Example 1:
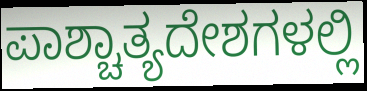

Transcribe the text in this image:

ಪಾಶ್ಚಾತ್ಯದೇಶಗಳಲ್ಲಿ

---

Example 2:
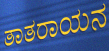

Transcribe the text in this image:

ತಾತರಾಯನ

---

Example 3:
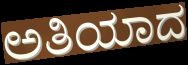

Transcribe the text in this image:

ಅತಿಯಾದ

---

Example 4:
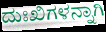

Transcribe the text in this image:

ದುಃಖಿಗಳನ್ನಾಗಿ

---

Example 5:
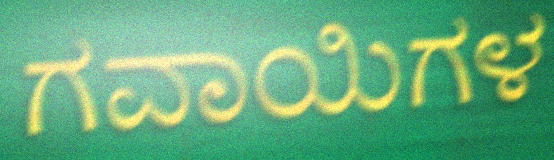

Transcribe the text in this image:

ಗವಾಯಿಗಳ